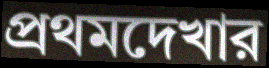
প্রথমদেখার